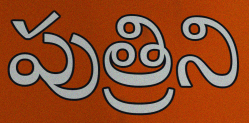
పుత్రిని